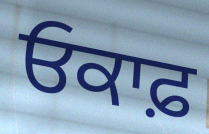
ਓਕਾਫ਼